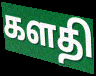
களதி